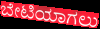
ಬೇಟಿಯಾಗಲು